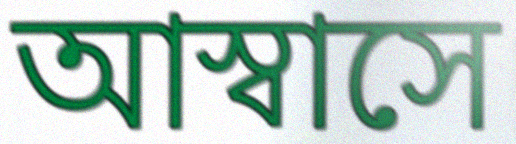
আস্বাসে